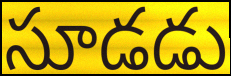
సూడడు